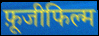
फ़ूजीफिल्म